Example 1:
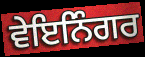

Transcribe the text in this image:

ਵੇਇਨਿੰਗਰ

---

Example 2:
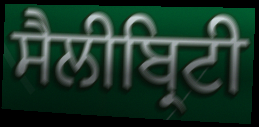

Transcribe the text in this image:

ਸੈਲੀਬ੍ਰਿਟੀ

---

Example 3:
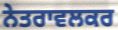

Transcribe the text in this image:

ਨੇਤਰਾਵਲਕਰ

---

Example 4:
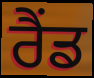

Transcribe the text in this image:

ਰੈਂਡ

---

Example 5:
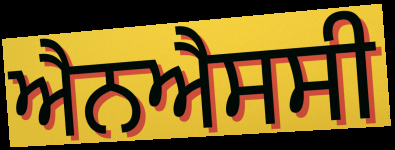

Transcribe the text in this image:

ਐਨਐਸਸੀ